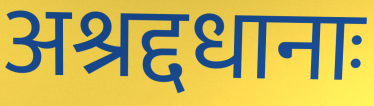
अश्रद्दधानाः